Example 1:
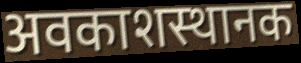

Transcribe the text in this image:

अवकाशस्थानक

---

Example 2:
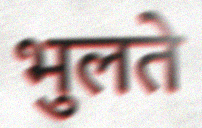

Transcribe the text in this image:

भुलते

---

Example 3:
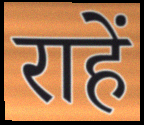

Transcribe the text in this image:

राहें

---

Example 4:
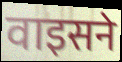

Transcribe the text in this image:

वाइसने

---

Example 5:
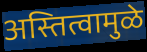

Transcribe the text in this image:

अस्तित्वामुळे